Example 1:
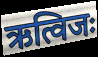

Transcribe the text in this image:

ऋत्विजः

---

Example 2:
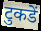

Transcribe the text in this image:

टुकडें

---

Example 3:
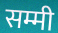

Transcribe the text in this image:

सम्मी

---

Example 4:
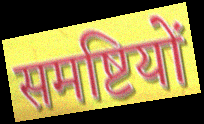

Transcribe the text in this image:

समष्टियों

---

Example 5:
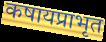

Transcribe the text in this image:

कषायप्राभृत